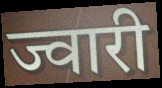
ज्वारी